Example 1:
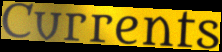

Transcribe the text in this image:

Currents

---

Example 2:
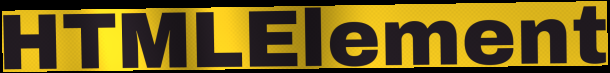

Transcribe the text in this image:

HTMLElement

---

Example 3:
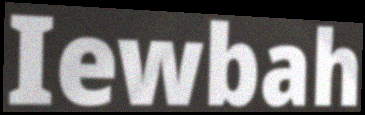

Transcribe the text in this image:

Iewbah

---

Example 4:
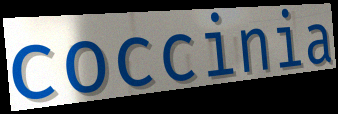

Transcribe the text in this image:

coccinia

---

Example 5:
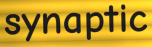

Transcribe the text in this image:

synaptic